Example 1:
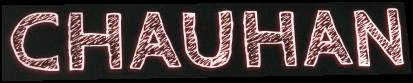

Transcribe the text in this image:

CHAUHAN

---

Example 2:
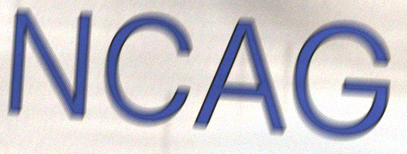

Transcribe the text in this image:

NCAG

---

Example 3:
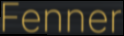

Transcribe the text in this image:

Fenner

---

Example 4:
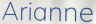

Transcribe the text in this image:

Arianne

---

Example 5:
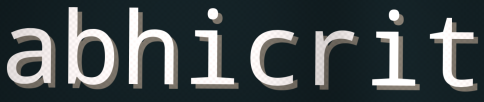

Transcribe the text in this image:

abhicrit